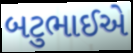
બટુભાઈએ